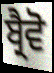
ਬ੍ਰੈਵੋ